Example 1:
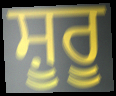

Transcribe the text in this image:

ਸ਼ੂਰੂ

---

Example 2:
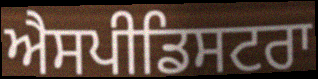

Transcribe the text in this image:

ਐਸਪੀਡਿਸਟਰਾ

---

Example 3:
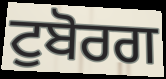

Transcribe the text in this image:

ਟੁਬੋਰਗ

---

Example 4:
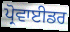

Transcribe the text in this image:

ਪ੍ਰੋਵਾਈਡਰ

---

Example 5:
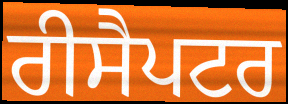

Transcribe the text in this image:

ਰੀਸੈਪਟਰ